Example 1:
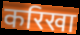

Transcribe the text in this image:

करिखा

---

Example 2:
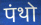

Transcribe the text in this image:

पंथो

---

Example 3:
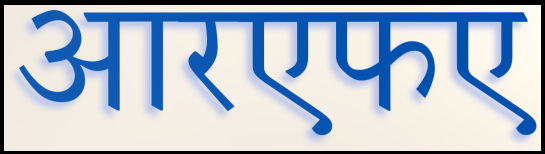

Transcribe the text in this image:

आरएफए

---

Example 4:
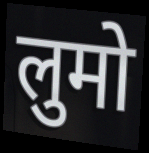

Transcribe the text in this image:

लुमो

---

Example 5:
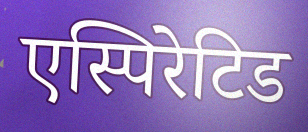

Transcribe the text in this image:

एस्पिरेटिड